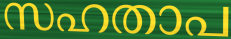
സഹതാപ